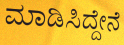
ಮಾಡಿಸಿದ್ದೇನೆ